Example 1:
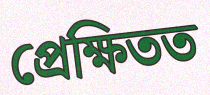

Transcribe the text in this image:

প্ৰেক্ষিতত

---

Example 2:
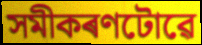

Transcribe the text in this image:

সমীকৰণটোৱে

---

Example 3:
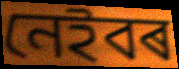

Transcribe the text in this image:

নেইবৰ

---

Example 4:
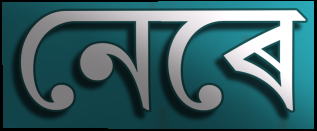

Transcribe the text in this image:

নেৰে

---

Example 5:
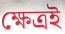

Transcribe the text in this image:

ক্ষেত্ৰই